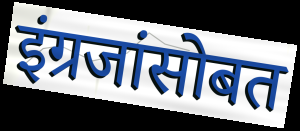
इंग्रजांसोबत